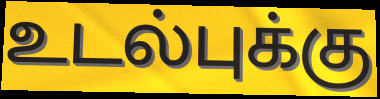
உடல்புக்கு